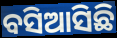
ବସିଆସିଛି